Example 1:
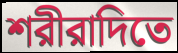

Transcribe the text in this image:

শরীরাদিতে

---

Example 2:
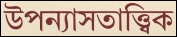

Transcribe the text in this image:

উপন্যাসতাত্ত্বিক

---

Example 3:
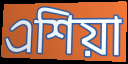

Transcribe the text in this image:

এশিয়া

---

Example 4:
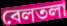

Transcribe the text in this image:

বেলতলা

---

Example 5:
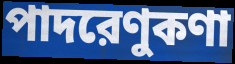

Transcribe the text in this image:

পাদরেণুকণা